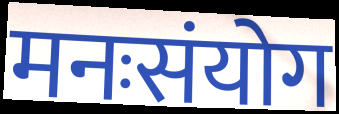
मनःसंयोग